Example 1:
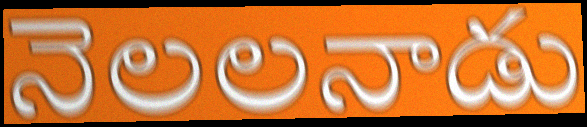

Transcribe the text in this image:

నెలలనాడు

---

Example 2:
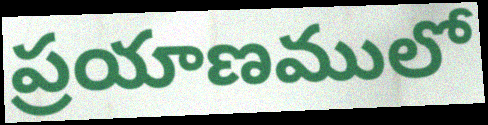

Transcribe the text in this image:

ప్రయాణములో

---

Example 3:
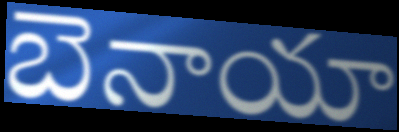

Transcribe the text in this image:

బెనాయా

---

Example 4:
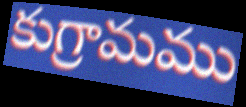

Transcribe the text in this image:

కుగ్రామము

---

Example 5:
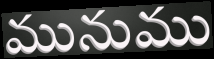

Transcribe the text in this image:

మునుము